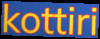
kottiri